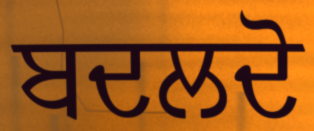
ਬਦਲਦੋ